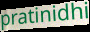
pratinidhi